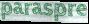
paraspre